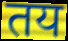
तय